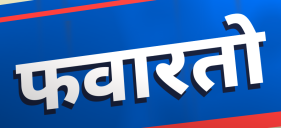
फवारतो